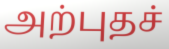
அற்புதச்